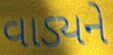
વાડ્યને